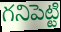
గనిపెట్టి